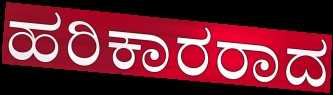
ಹರಿಕಾರರಾದ